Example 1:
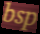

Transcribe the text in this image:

bsp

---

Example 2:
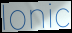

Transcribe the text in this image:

Ionic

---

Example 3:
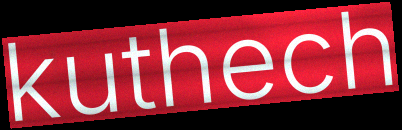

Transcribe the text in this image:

kuthech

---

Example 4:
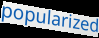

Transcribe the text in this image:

popularized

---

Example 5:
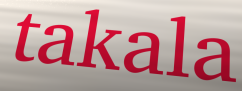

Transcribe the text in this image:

takala